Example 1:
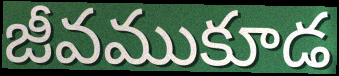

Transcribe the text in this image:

జీవముకూడ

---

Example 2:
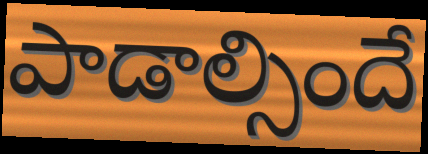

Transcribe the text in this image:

పాడాల్సిందే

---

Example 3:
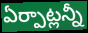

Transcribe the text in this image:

ఏర్పాట్లన్నీ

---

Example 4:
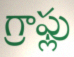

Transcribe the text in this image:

గ్రాఫ్లు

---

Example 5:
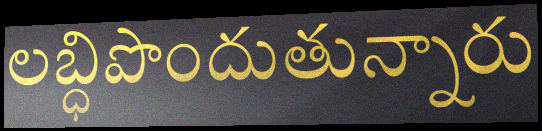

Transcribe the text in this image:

లబ్ధిపొందుతున్నారు